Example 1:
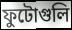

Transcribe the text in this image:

ফুটোগুলি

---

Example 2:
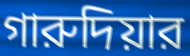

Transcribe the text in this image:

গারুদিয়ার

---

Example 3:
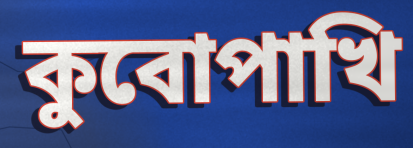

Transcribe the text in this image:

কুবোপাখি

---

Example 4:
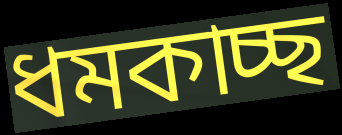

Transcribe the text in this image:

ধমকাচ্ছ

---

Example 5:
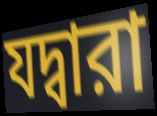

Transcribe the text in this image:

যদ্বারা